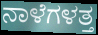
ನಾಳೆಗಳತ್ತ